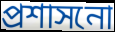
প্ৰশাসনো